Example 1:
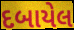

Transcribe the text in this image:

દબાયેલ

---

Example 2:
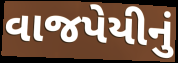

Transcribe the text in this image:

વાજપેયીનું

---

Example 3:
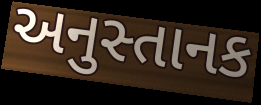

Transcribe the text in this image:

અનુસ્તાનક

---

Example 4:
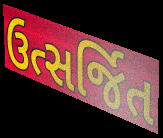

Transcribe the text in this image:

ઉત્સર્જિત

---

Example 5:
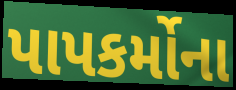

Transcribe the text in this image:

પાપકર્મોના